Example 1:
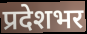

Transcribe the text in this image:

प्रदेशभर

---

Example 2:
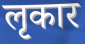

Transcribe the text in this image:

लृकार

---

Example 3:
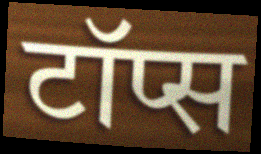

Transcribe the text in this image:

टॉप्स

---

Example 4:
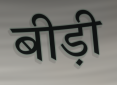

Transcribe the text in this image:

बीड़ी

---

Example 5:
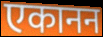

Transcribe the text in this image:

एकानन